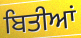
ਬਿਤੀਆਂ